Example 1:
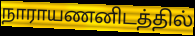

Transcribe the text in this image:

நாராயணனிடத்தில்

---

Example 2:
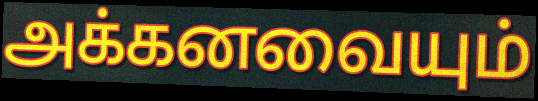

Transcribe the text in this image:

அக்கனவையும்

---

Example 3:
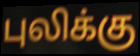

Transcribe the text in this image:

புலிக்கு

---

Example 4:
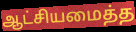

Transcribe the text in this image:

ஆட்சியமைத்த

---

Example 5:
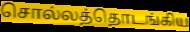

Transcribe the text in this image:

சொல்லத்தொடங்கிய